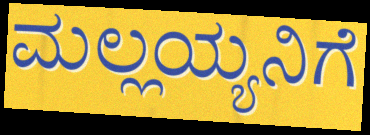
ಮಲ್ಲಯ್ಯನಿಗೆ